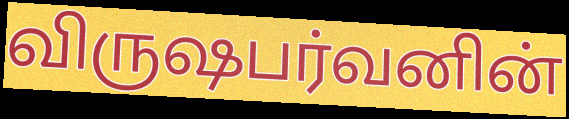
விருஷபர்வனின்